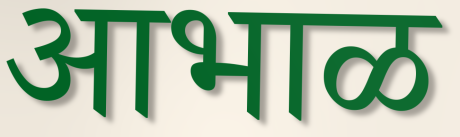
आभाळ